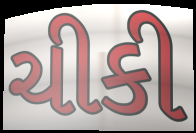
ચીકી